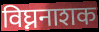
विघ्ननाशक